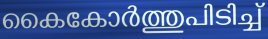
കൈകോർത്തുപിടിച്ച്